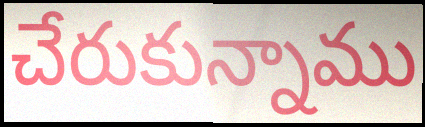
చేరుకున్నాము